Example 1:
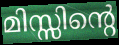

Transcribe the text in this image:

മിസ്സിന്റെ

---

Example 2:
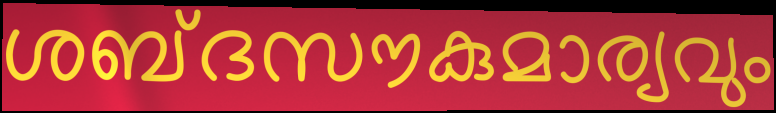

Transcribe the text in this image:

ശബ്ദസൗകുമാര്യവും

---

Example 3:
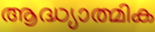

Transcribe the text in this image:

ആദ്ധ്യാത്മിക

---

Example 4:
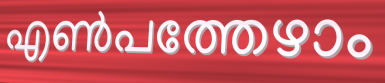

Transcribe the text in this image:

എൺപത്തേഴാം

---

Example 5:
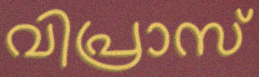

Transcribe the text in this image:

വിപ്രാസ്